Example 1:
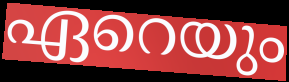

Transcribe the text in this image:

ഏറെയും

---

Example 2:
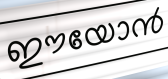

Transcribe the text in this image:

ഈയോൻ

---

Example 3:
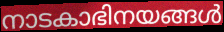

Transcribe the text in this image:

നാടകാഭിനയങ്ങൾ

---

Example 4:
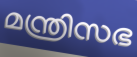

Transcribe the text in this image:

മന്ത്രിസഭ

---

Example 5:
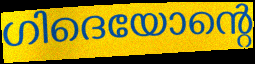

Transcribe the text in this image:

ഗിദെയോന്റെ